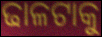
ଢାଳଟାକୁ